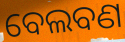
ବେଲବଣ